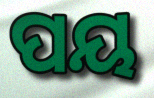
ପୟ